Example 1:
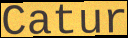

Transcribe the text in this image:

Catur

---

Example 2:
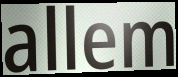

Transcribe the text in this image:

allem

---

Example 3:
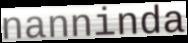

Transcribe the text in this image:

nanninda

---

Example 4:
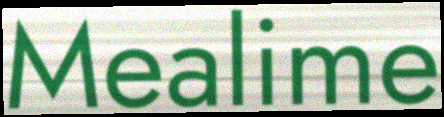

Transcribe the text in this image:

Mealime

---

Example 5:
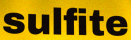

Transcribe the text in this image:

sulfite